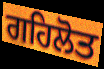
ਗਹਿਲੋਤ